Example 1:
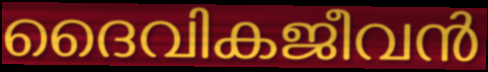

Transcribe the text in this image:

ദൈവികജീവൻ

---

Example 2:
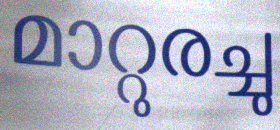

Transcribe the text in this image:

മാറ്റുരച്ചു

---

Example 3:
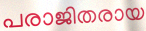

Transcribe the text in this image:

പരാജിതരായ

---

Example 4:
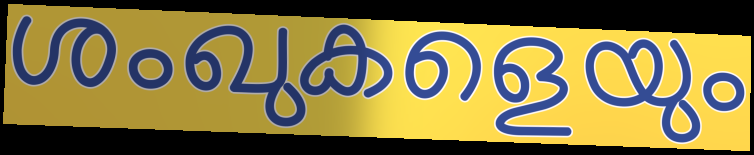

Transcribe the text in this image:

ശംഖുകളെയും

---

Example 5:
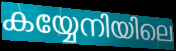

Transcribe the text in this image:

കയ്യേനിയിലെ